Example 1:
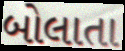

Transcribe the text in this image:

બોલાતા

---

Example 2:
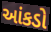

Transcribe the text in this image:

આંકડો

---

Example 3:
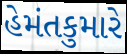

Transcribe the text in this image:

હેમંતકુમારે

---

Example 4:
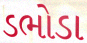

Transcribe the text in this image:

ડભોડા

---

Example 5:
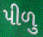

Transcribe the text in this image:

પીળુ